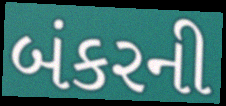
બંકરની